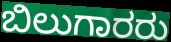
ಬಿಲುಗಾರರು